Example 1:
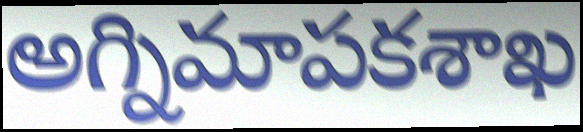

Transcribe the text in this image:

అగ్నిమాపకశాఖ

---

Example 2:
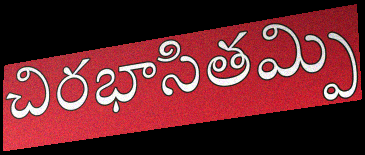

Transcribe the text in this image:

చిరభాసితమ్పి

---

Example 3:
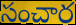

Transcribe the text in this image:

సంచార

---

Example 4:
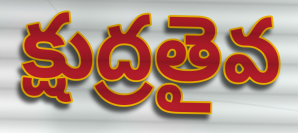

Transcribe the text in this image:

క్షుద్రతైవ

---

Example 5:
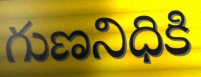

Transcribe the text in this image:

గుణనిధికి